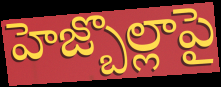
హెజ్బొల్లాపై